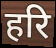
हरि